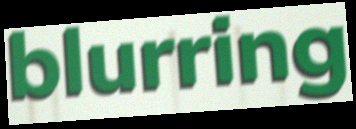
blurring